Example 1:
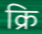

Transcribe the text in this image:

क्रि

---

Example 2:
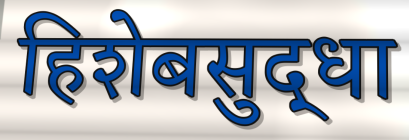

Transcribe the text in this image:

हिशेबसुद्धा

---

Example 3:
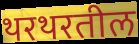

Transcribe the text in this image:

थरथरतील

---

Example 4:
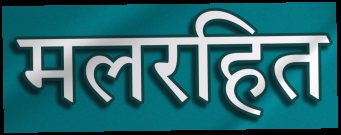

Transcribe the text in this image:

मलरहित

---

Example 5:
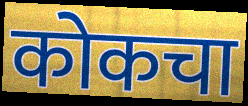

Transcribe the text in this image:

कोकचा